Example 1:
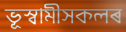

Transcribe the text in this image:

ভূস্বামীসকলৰ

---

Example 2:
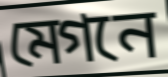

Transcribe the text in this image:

মেগনে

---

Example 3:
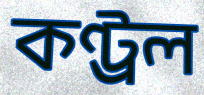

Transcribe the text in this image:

কণ্ট্ৰল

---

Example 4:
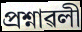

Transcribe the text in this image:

প্ৰশ্নাৱলী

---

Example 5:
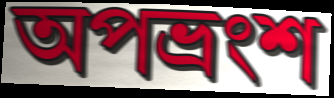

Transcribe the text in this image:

অপভ্ৰংশ